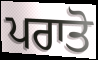
ਪਰਾਤੋ